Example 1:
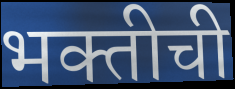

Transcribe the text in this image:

भक्‍तीची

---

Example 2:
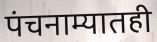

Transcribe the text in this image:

पंचनाम्यातही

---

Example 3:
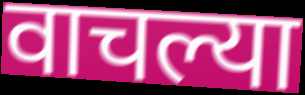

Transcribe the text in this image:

वाचल्या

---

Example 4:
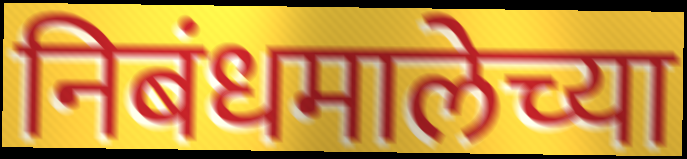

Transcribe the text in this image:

निबंधमालेच्या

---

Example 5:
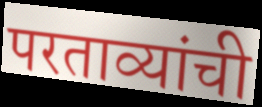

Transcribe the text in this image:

परताव्यांची